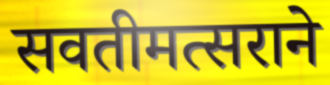
सवतीमत्सराने